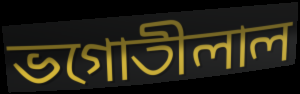
ভগোতীলাল